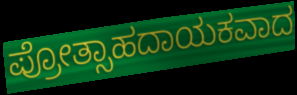
ಪ್ರೋತ್ಸಾಹದಾಯಕವಾದ